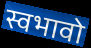
स्वभावो